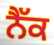
ਨੈੱਕ